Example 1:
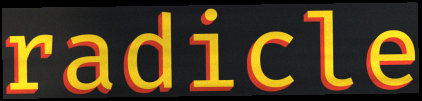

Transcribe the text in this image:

radicle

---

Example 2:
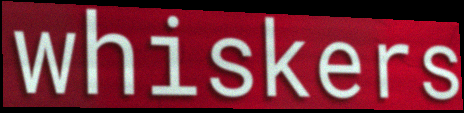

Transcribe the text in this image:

whiskers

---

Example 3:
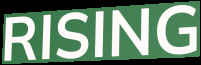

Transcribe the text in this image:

RISING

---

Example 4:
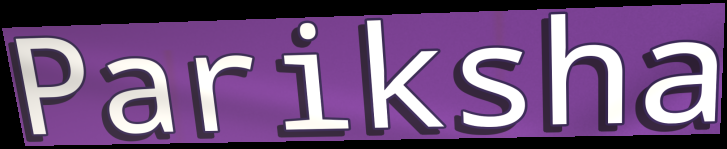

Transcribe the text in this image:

Pariksha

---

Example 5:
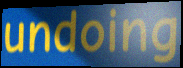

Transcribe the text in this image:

undoing